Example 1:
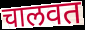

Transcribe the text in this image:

चालवत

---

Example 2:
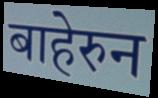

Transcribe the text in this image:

बाहेरुन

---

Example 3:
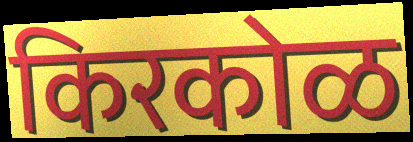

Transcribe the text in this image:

किरकोळ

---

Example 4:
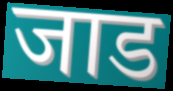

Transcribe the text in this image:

जाड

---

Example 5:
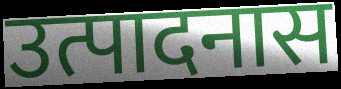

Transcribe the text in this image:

उत्पादनास